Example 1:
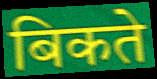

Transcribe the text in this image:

बिकते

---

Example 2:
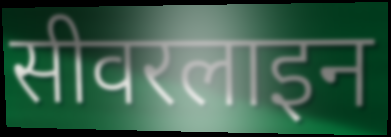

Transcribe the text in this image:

सीवरलाइन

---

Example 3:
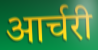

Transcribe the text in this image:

आर्चरी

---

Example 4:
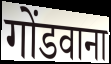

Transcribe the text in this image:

गोंडवाना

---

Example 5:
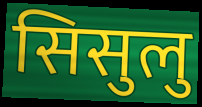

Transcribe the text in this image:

सिसुलु